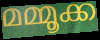
മമ്മൂക്ക